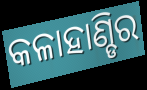
କଳାହାଣ୍ଡିର